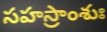
సహస్రాంశుః